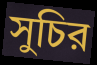
সুচির